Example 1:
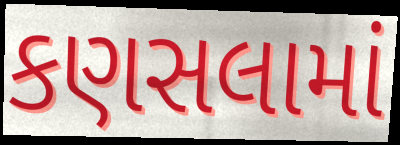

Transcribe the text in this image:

કણસલામાં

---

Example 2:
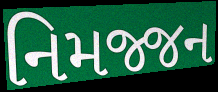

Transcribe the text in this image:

નિમજ્જન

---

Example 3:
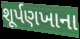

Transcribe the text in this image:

શૂર્પણખાના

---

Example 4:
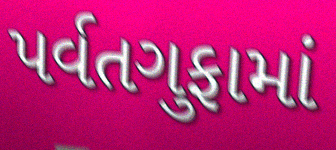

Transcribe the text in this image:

પર્વતગુફામાં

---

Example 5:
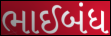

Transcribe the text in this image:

ભાઈબંધ